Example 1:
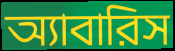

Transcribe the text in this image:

অ্যাবারিস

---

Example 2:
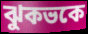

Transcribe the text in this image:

ঝুকভকে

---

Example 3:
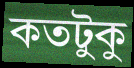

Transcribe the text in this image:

কতটুকু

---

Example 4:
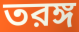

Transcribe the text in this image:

তরঙ্গ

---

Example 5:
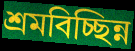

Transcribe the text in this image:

শ্রমবিচ্ছিন্ন